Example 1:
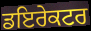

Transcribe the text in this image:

ਡਇਰੇਕਟਰ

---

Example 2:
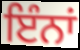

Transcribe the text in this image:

ਇੰਨਾਂ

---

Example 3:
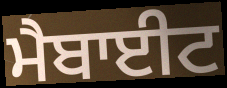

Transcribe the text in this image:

ਮੈਬਾਈਟ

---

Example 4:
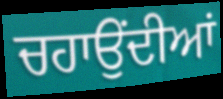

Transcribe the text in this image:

ਚਹਾਉਂਦੀਆਂ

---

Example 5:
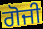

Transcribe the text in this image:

ਗੋਜੀ